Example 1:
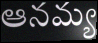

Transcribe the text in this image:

ఆనమ్య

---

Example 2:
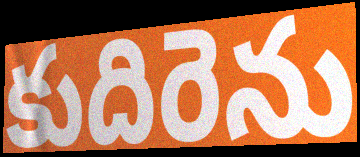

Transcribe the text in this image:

కుదిరెను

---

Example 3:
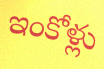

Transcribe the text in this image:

ఇంకోళ్లు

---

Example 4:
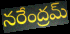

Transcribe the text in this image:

నరేంద్రమ్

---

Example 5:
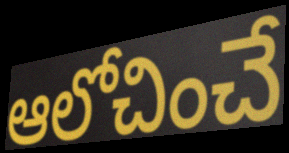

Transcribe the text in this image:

ఆలోచించే